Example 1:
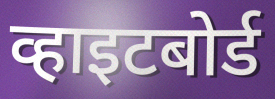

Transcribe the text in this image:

व्हाइटबोर्ड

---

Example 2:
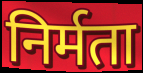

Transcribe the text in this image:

निर्मता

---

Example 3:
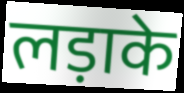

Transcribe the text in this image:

लड़ाके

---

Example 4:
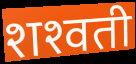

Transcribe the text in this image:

शश्वती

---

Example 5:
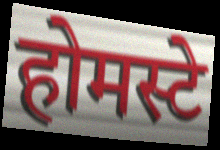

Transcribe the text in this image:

होमस्टे